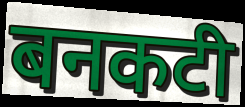
बनकटी